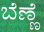
ಬೆಣ್ಣೆ